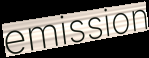
emission